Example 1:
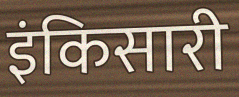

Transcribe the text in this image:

इंकिसारी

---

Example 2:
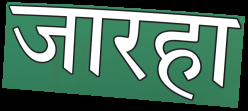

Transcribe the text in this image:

जारहा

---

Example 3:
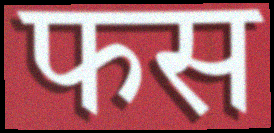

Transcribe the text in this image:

फस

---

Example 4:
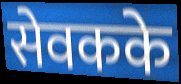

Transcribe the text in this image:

सेवकके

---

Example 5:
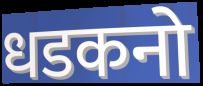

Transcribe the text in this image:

धडकनो